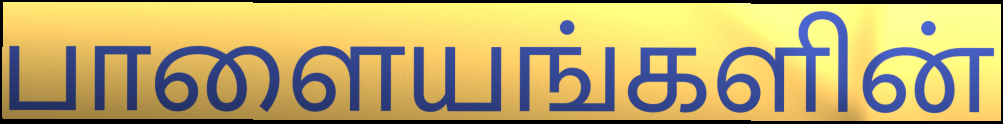
பாளையங்களின்